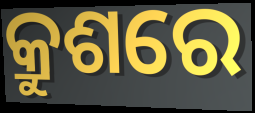
କ୍ରୁଶରେ